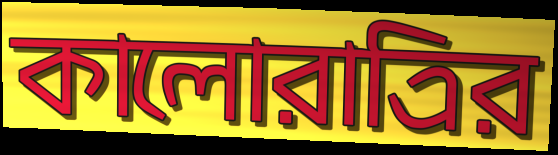
কালোরাত্রির